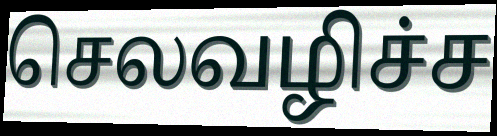
செலவழிச்ச